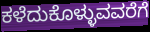
ಕಳೆದುಕೊಳ್ಳುವವರೆಗೆ